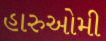
હારુઓમી